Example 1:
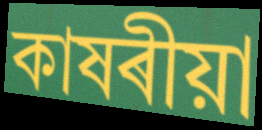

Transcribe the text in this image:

কাষৰীয়া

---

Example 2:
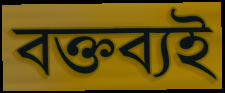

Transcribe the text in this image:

বক্তব্যই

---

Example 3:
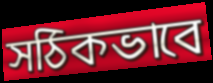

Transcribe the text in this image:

সঠিকভাবে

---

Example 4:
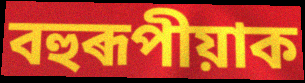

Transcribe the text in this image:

বহুৰূপীয়াক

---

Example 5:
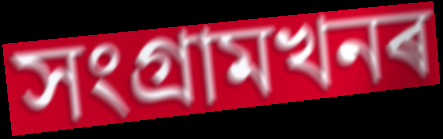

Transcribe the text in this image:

সংগ্ৰামখনৰ